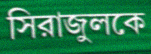
সিরাজুলকে